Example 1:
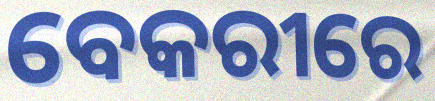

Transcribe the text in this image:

ବେକରୀରେ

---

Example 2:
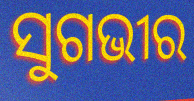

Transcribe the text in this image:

ସୁଗଭୀର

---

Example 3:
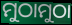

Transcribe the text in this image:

ମୁଠାମୁଠା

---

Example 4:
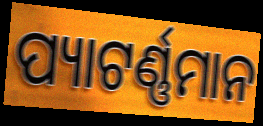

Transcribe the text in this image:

ପ୍ୟାଟର୍ଣ୍ଣମାନ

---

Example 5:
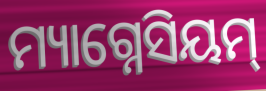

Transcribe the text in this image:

ମ୍ୟାଗ୍ନେସିୟମ୍